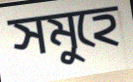
সমুহে